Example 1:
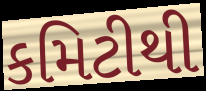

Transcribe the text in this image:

કમિટીથી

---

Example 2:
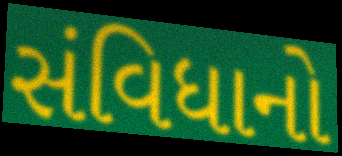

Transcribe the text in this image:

સંવિધાનો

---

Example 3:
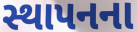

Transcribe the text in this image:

સ્થાપનના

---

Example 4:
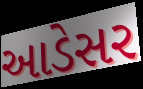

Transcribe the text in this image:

આડેસર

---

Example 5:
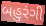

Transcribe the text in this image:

બહુરંગી